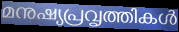
മനുഷ്യപ്രവൃത്തികൾ